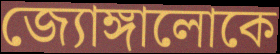
জ্যোঙ্গালোকে